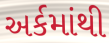
અર્કમાંથી